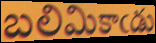
బలిమికాఁడు